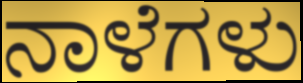
ನಾಳೆಗಳು